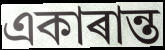
একাৰান্ত